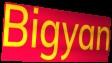
Bigyan